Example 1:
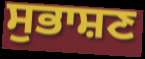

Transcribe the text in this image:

ਸੁਭਾਸ਼ਣ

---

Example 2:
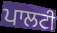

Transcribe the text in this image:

ਪਾਲਟੀ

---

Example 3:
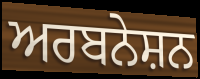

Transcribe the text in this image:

ਅਰਬਨੇਸ਼ਨ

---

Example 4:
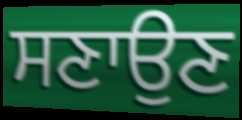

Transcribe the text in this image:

ਸਣਾਉਣ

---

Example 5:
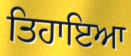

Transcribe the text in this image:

ਤਿਹਾਇਆ